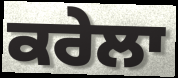
ਕਰੇਲਾ